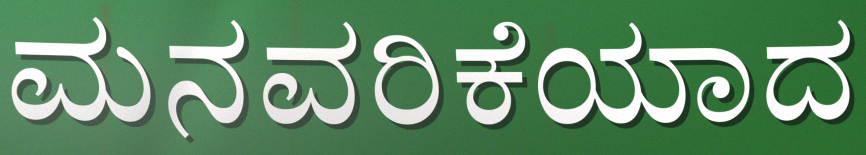
ಮನವರಿಕೆಯಾದ